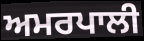
ਅਮਰਪਾਲੀ